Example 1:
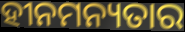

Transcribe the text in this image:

ହୀନମନ୍ୟତାର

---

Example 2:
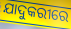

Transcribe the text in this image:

ଯାଦୁକରୀରେ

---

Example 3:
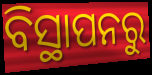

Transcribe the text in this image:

ବିସ୍ଥାପନରୁ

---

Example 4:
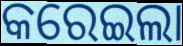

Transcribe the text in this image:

କରେଇଲା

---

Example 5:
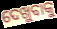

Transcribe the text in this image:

ଦେଖୁବାକୁ